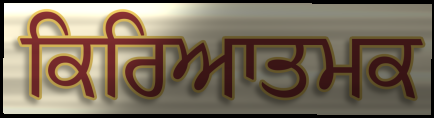
ਕਿਰਿਆਤਮਕ